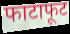
फाटाफूट